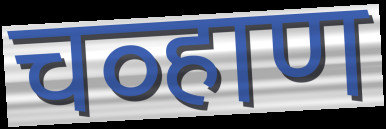
चव्हाण